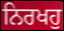
ਨਿਰਖਹੁ